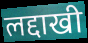
लद्दाखी